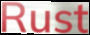
Rust